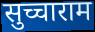
सुच्चाराम